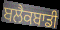
ਬਲੈਕਬਾਡੀ